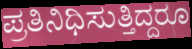
ಪ್ರತಿನಿಧಿಸುತ್ತಿದ್ದರೂ